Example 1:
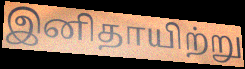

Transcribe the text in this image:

இனிதாயிற்று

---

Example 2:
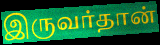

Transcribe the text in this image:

இருவர்தான்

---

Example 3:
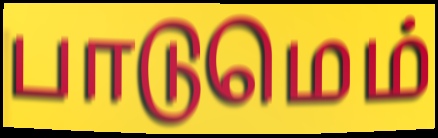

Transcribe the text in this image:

பாடுமெம்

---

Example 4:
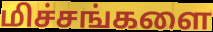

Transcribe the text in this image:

மிச்சங்களை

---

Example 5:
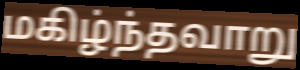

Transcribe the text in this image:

மகிழ்ந்தவாறு